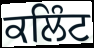
ਕਲਿੰਟ